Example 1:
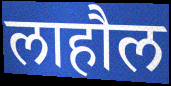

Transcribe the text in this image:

लाहौल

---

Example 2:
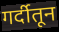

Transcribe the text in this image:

गर्दीतून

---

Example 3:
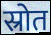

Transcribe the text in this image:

स्रोत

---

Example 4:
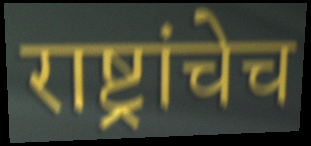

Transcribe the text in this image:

राष्ट्रांचेच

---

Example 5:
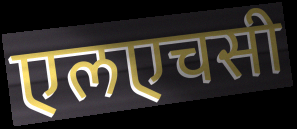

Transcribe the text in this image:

एलएचसी